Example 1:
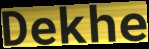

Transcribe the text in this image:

Dekhe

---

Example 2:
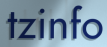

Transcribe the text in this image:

tzinfo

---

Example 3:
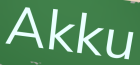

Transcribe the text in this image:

Akku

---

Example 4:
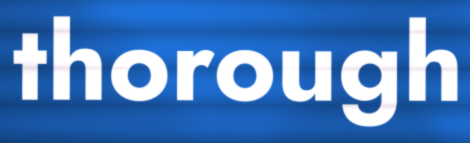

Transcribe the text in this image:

thorough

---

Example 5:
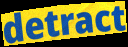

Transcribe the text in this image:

detract